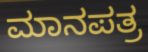
ಮಾನಪತ್ರ